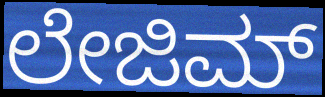
ಲೇಜಿಮ್